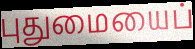
புதுமையைப்